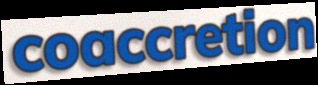
coaccretion